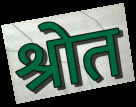
श्रोत